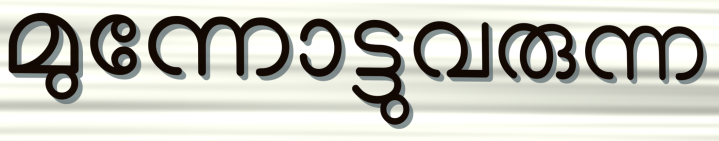
മുന്നോട്ടുവരുന്ന